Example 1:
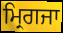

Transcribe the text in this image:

ਮ੍ਰਿਗਜਾ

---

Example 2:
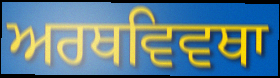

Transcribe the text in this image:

ਅਰਥਵਿਵਥਾ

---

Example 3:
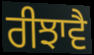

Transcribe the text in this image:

ਰੀਝਾਵੈ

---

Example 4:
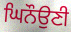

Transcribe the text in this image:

ਘਿਨੌਉਣੀ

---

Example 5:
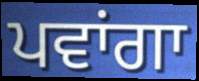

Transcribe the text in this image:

ਪਵਾਂਗਾ